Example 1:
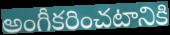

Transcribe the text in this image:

అంగీకరించటానికి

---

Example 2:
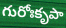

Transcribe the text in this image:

గురోఃకృపా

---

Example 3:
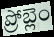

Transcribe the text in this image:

ప్రోబ్లెం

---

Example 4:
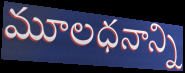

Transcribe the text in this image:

మూలధనాన్ని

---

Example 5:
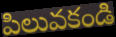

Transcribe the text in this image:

పిలువకండి